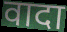
वादा